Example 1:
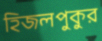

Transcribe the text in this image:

হিজলপুকুর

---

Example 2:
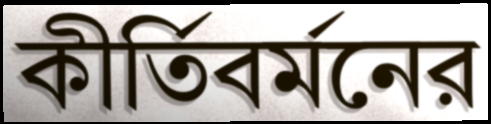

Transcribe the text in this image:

কীর্তিবর্মনের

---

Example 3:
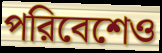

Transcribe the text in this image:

পরিবেশেও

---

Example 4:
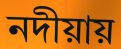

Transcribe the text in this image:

নদীয়ায়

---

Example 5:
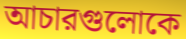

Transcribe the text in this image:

আচারগুলোকে